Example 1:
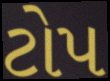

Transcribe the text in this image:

ટોપ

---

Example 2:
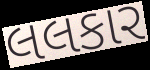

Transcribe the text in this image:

લલકાર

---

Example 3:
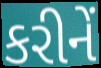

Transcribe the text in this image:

કરીનેં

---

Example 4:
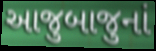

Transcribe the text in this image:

આજુબાજુનાં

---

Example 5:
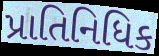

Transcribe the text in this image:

પ્રાતિનિધિક